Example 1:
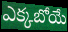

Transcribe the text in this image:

ఎక్కబోయే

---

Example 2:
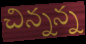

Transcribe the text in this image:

చిన్నన్న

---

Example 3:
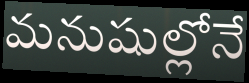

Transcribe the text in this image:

మనుషుల్లోనే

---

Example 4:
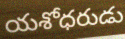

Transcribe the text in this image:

యశోధరుడు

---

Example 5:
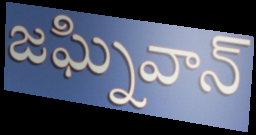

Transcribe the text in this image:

జఘ్నివాన్